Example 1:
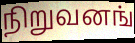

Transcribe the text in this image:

நிறுவனங்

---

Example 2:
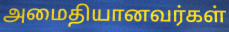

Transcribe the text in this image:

அமைதியானவர்கள்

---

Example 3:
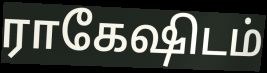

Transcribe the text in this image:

ராகேஷிடம்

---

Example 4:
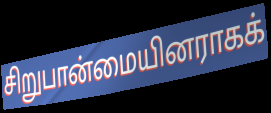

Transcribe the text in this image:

சிறுபான்மையினராகக்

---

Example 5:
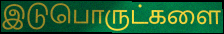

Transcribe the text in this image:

இடுபொருட்களை